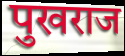
पुखराज